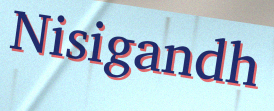
Nisigandh